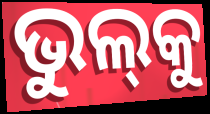
ଭୁଲ୍‍କୁ